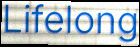
Lifelong